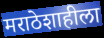
मराठेशाहीला